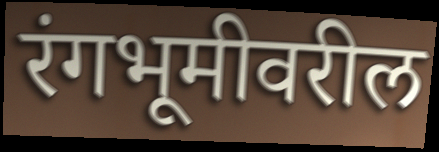
रंगभूमीवरील